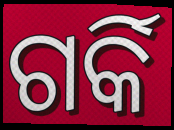
ଗର୍କି